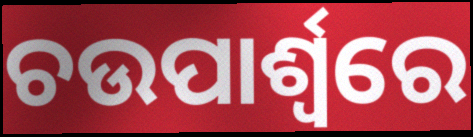
ଚଉପାର୍ଶ୍ୱରେ